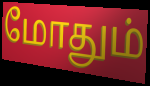
மோதும்